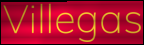
Villegas